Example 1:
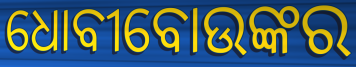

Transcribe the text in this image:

ଧୋବୀବୋଉଙ୍କର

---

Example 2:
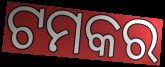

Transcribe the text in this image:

ଟମକର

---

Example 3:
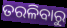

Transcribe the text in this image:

ତରଳିବାରୁ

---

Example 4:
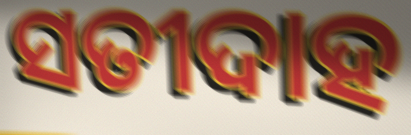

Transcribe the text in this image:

ସତୀଦାହ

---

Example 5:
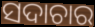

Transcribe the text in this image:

ସଦାଚାର